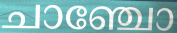
ചാഞ്ചോ